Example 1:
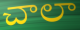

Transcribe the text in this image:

చాలా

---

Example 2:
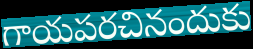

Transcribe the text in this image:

గాయపరచినందుకు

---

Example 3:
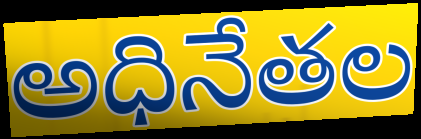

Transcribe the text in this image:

అధినేతల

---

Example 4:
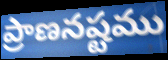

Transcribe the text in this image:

ప్రాణనష్టము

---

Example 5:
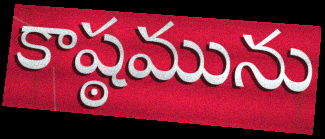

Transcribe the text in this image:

కాష్ఠమును